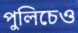
পুলিচেও